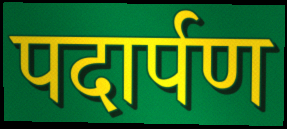
पदार्पण